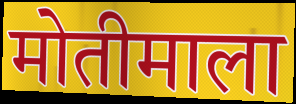
मोतीमाला